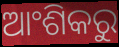
ଆଂଶିକରୁ